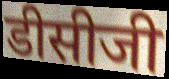
डीसीजी